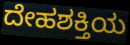
ದೇಹಶಕ್ತಿಯ